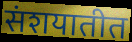
संशयातीत